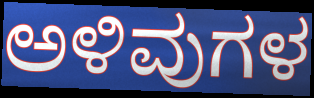
ಅಳಿವುಗಳ